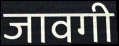
जावगी